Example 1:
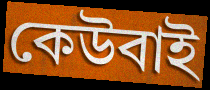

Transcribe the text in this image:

কেউবাই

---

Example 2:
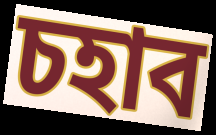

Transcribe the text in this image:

চহাব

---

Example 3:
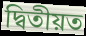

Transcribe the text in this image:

দ্বিতীয়ত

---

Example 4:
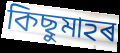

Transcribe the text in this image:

কিছুমাহৰ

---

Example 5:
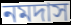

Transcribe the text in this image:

নমদাস